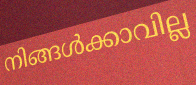
നിങ്ങൾക്കാവില്ല